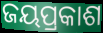
ଜୟପ୍ରକାଶ